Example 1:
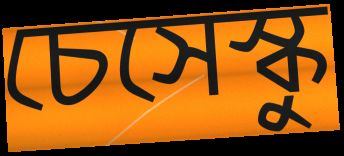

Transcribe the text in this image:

চেসেস্কু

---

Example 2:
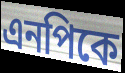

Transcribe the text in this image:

এনপিকে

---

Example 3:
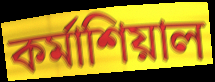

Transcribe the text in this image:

কর্মাশিয়াল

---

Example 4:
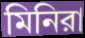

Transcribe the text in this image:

মিনিরা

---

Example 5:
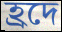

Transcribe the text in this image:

হ্রদে